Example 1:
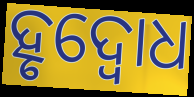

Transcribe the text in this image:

ହୃଦ୍ବୋଧ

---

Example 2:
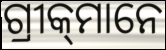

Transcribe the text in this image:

ଗ୍ରୀକ୍‌ମାନେ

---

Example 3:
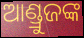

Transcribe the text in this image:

ଆଣ୍ଡ୍ରୁଜଙ୍କ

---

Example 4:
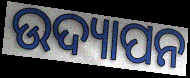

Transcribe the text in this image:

ଉଦ୍ୟାପନ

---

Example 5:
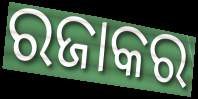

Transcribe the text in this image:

ରଜାକର